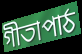
গীতাপাঠ